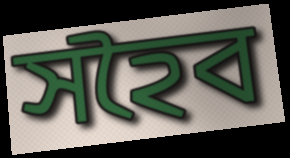
সহৈব